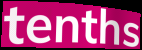
tenths